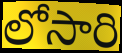
లోసారి